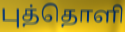
புத்தொளி